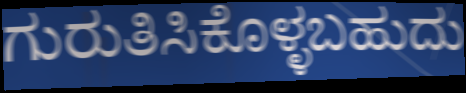
ಗುರುತಿಸಿಕೊಳ್ಳಬಹುದು